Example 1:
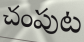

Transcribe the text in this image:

చంపుట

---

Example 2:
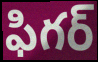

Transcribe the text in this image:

ఫిగర్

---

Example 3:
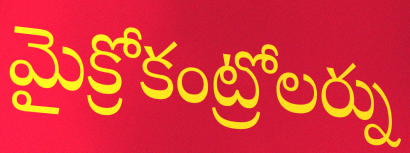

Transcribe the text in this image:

మైక్రోకంట్రోలర్ను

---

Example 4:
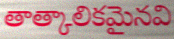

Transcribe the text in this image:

తాత్కాలికమైనవి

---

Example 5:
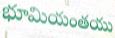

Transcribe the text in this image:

భూమియంతయు